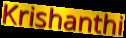
Krishanthi